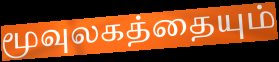
மூவுலகத்தையும்